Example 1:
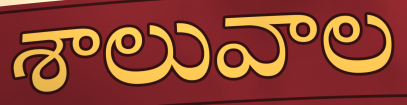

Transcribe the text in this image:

శాలువాల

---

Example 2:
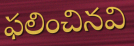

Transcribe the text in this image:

ఫలించినవి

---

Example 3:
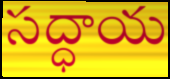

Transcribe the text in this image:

సద్ధాయ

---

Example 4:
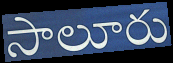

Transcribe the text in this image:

సాలూరు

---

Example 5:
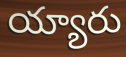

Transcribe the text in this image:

య్యారు